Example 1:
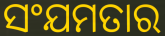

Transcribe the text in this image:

ସଂଯମତାର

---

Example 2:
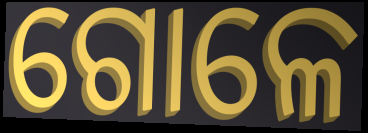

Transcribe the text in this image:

ଗୋଳେ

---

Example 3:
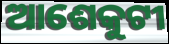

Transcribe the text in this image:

ଆଶେକୁଟୀ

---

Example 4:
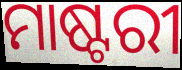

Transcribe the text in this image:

ମାଷ୍ଟରୀ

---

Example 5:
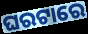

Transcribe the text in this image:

ଘରଟାରେ